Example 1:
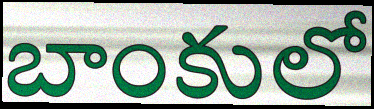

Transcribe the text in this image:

బాంకులో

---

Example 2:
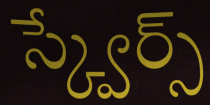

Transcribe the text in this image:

స్క్వేర్స్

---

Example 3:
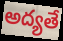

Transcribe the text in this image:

అద్యతే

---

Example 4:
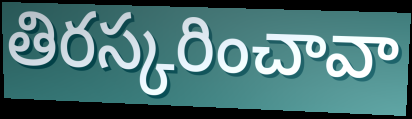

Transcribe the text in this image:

తిరస్కరించావా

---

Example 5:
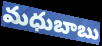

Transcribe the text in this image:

మధుబాబు